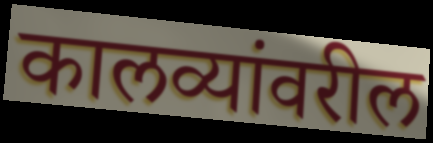
कालव्यांवरील